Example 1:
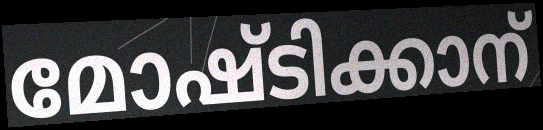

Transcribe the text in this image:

മോഷ്ടിക്കാന്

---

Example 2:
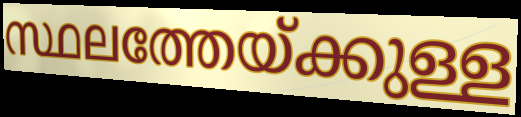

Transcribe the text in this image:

സ്ഥലത്തേയ്ക്കുള്ള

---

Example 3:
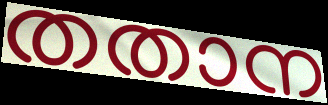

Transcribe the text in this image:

തതാന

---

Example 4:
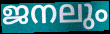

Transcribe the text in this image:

ജനലും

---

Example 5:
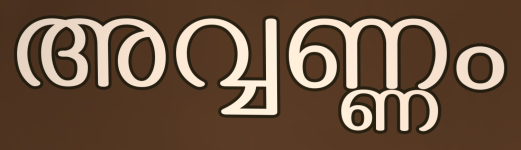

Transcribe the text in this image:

അവ്വണ്ണം